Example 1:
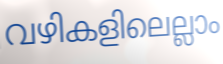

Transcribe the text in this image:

വഴികളിലെല്ലാം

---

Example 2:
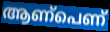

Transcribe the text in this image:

ആണ്പെണ്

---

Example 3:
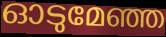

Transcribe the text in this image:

ഓടുമേഞ്ഞ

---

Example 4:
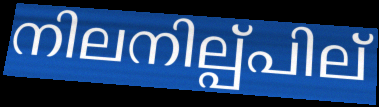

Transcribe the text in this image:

നിലനില്പ്പില്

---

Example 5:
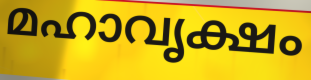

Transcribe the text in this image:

മഹാവൃക്ഷം